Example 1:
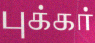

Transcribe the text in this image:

புக்கர்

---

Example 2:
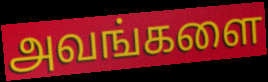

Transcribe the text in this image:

அவங்களை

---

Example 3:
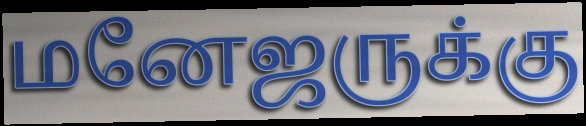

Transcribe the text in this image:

மனேஜருக்கு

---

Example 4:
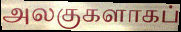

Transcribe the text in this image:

அலகுகளாகப்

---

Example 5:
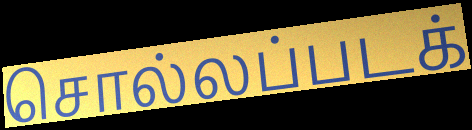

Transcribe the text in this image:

சொல்லப்படக்